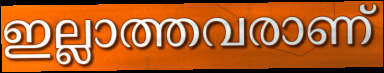
ഇല്ലാത്തവരാണ്